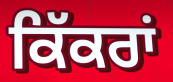
ਕਿੱਕਰਾਂ